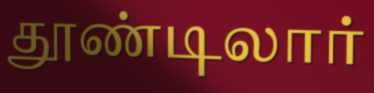
தூண்டிலார்